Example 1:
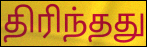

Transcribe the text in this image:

திரிந்தது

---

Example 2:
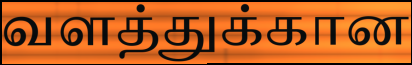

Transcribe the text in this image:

வளத்துக்கான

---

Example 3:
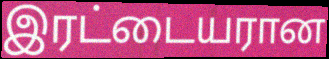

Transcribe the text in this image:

இரட்டையரான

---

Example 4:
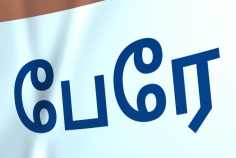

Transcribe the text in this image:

பேரே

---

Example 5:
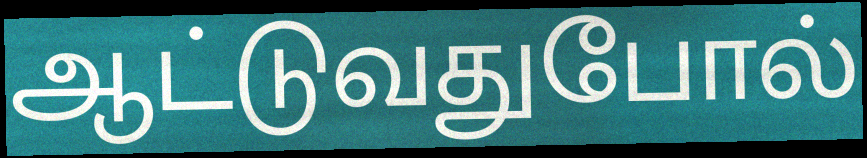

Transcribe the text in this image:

ஆட்டுவதுபோல்